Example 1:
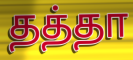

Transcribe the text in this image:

தத்தா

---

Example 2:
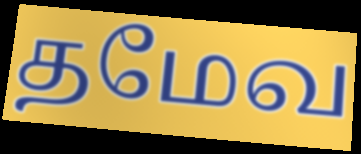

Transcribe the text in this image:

தமேவ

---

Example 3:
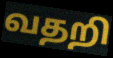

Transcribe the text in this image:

வதறி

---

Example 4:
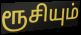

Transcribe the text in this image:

ரூசியும்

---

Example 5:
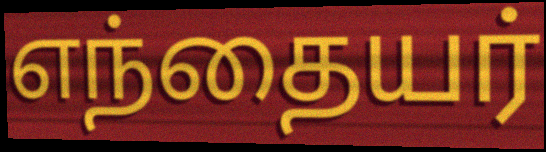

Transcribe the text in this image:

எந்தையர்